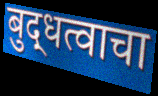
बुद्धत्वाचा